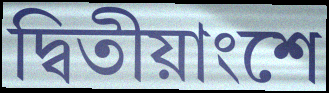
দ্বিতীয়াংশে